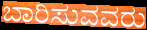
ಬಾರಿಸುವವರು